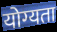
योग्‍यता